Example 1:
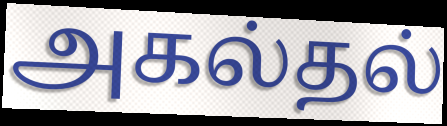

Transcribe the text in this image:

அகல்தல்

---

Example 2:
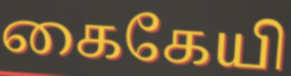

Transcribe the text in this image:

கைகேயி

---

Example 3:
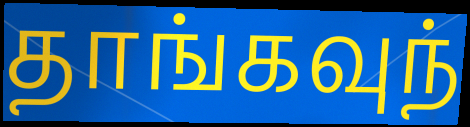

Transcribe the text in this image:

தாங்கவுந்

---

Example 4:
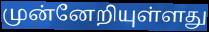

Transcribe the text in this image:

முன்னேறியுள்ளது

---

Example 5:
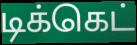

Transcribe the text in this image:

டிக்கெட்